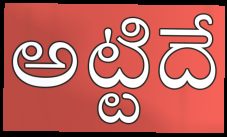
అట్టిదే